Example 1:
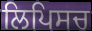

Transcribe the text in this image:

ਲਿਪਿਸਚ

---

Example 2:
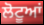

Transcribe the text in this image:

ਲੋਟੂਆਂ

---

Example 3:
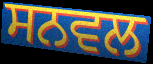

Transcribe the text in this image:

ਸਨਵਲ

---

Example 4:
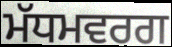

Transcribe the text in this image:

ਮੱਧਮਵਰਗ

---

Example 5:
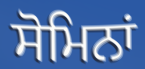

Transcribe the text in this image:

ਸੋਮਿਨਾਂ